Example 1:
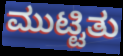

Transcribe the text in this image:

ಮುಟ್ಟಿತು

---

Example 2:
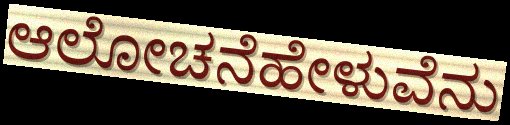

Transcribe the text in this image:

ಆಲೋಚನೆಹೇಳುವೆನು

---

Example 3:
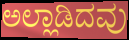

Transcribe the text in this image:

ಅಲ್ಲಾಡಿದವು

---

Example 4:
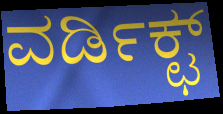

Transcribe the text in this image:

ವರ್ಡಿಕ್ಟ್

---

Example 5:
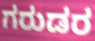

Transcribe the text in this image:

ಗರುಡರ